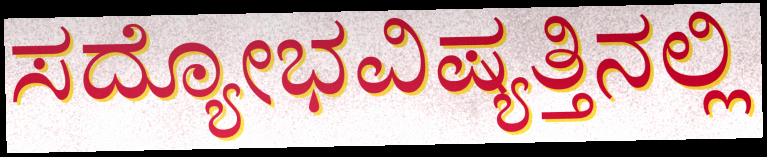
ಸದ್ಯೋಭವಿಷ್ಯತ್ತಿನಲ್ಲಿ